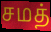
சமத்